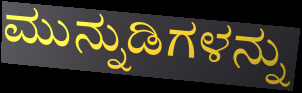
ಮುನ್ನುಡಿಗಳನ್ನು